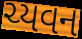
ચ્યવન